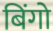
बिंगो